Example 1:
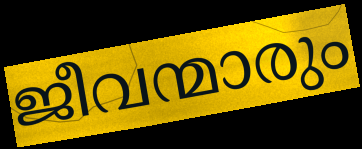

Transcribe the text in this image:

ജീവന്മാരും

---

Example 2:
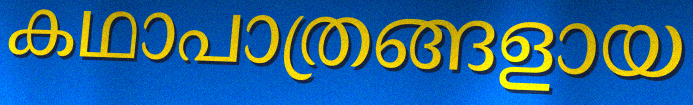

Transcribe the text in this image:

കഥാപാത്രങ്ങളായ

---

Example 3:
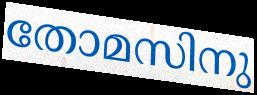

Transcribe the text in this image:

തോമസിനു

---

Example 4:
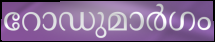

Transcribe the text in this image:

റോഡുമാർഗം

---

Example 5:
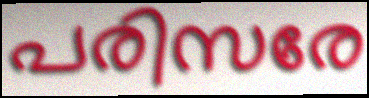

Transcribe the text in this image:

പരിസരേ